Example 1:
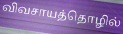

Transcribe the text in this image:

விவசாயத்தொழில்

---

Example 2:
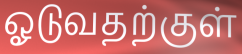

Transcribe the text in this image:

ஓடுவதற்குள்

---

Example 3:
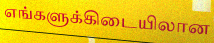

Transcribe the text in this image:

எங்களுக்கிடையிலான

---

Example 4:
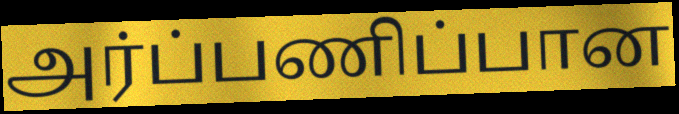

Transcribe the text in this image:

அர்ப்பணிப்பான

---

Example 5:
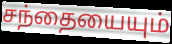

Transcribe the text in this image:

சந்தையையும்